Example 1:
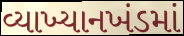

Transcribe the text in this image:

વ્યાખ્યાનખંડમાં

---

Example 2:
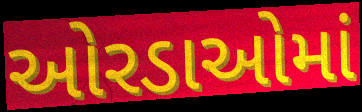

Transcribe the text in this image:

ઓરડાઓમાં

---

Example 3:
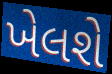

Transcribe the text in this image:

ખેલશે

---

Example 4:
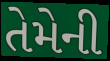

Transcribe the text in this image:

તેમેની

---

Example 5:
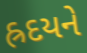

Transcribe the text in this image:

હ્રદયને